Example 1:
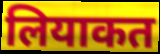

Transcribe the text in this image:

लियाकत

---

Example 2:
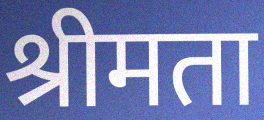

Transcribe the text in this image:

श्रीमता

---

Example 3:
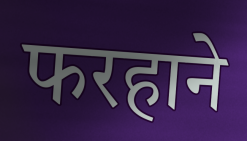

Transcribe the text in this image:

फरहाने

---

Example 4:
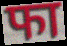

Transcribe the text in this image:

फा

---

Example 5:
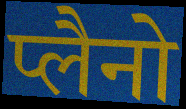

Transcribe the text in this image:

प्लैनो